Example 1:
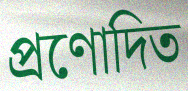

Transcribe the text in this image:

প্ৰণোদিত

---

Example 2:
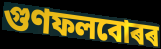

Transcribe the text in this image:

গুণফলবোৰৰ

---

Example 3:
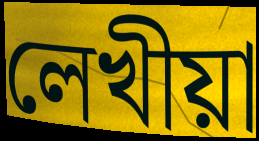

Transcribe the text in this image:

লেখীয়া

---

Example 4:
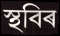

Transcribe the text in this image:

স্থবিৰ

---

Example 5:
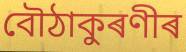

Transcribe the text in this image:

বৌঠাকুৰণীৰ